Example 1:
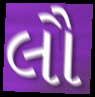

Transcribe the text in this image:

લૌ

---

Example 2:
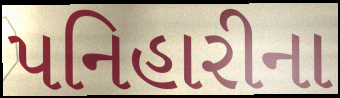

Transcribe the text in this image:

પનિહારીના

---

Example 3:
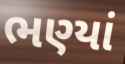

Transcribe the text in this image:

ભણ્યાં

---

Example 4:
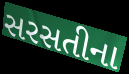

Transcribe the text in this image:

સરસતીના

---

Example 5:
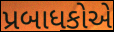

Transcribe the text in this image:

પ્રબાધકોએ